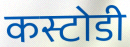
कस्टोडी